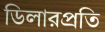
ডিলারপ্রতি